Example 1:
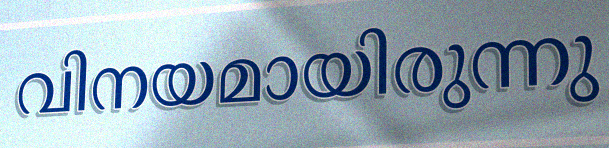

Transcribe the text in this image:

വിനയമായിരുന്നു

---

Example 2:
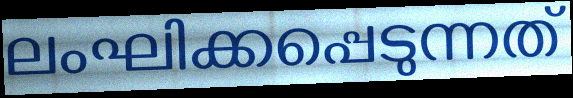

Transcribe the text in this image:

ലംഘിക്കപ്പെടുന്നത്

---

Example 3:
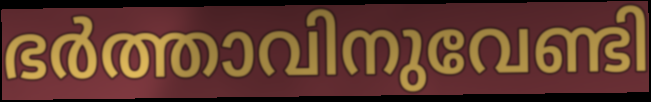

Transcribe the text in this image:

ഭർത്താവിനുവേണ്ടി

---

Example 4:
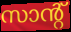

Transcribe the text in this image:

സാന്റ്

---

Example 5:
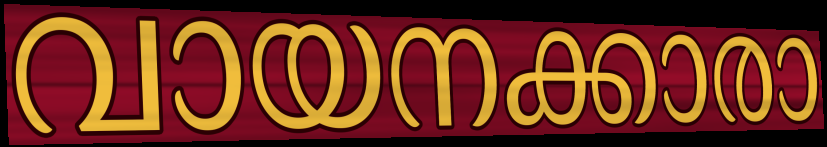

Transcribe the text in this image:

വായനക്കാരാ